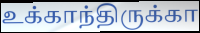
உக்காந்திருக்கா